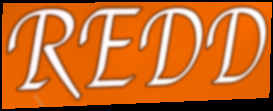
REDD